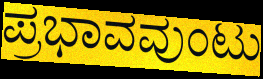
ಪ್ರಭಾವವುಂಟು